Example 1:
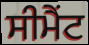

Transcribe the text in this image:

ਸੀਮੈੰਟ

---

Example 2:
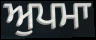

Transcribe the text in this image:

ਅੁਪਮਾ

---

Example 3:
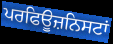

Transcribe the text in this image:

ਪਰਫਿਊਜ਼ਨਿਸਟਾਂ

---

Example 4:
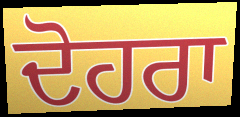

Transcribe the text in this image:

ਦੋਹਰਾ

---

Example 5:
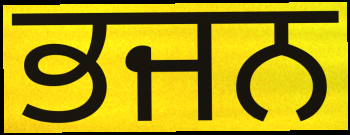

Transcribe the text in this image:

ਭਜਨ